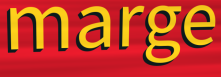
marge